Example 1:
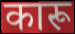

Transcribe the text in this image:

कारू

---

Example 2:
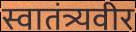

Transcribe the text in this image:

स्वातंत्र्यवीर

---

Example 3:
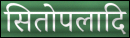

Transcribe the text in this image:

सितोपलादि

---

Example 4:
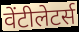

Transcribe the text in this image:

वेंटीलेटर्स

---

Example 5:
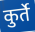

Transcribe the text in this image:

कुर्ते